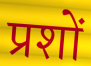
प्रशों